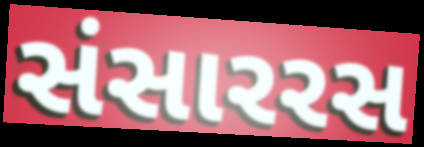
સંસારરસ